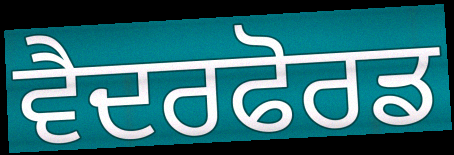
ਵੈਦਰਫੋਰਡ